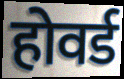
होवर्ड